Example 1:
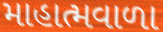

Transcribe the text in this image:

માહાત્મવાળા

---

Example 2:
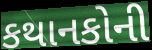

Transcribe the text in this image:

કથાનકોની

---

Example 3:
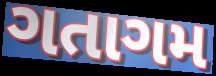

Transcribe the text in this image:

ગતાગમ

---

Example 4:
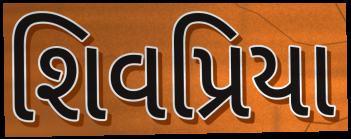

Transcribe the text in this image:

શિવપ્રિયા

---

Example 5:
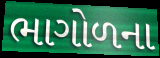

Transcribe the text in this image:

ભાગોળના